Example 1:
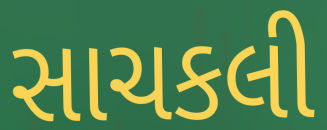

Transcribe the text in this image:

સાચકલી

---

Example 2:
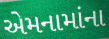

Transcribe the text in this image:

એમનામાંના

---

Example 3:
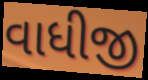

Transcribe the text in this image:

વાધીજી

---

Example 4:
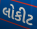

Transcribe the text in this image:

લોકીટ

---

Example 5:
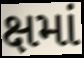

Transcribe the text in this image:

ક્ષમાં